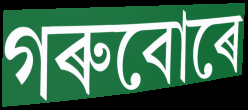
গৰুবোৰে